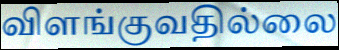
விளங்குவதில்லை